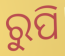
ରୁପି